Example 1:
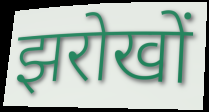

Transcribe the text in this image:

झरोखों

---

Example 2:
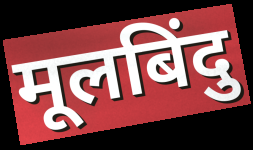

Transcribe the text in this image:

मूलबिंदु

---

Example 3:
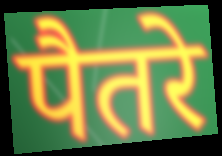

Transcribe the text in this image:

पैतरे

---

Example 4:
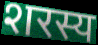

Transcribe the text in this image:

शरस्य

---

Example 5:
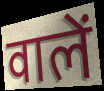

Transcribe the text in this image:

वालें